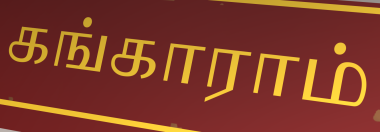
கங்காராம்